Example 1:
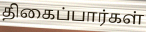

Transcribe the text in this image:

திகைப்பார்கள்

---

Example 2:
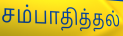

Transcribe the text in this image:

சம்பாதித்தல்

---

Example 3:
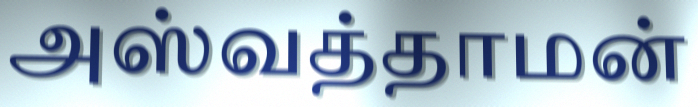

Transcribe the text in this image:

அஸ்வத்தாமன்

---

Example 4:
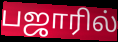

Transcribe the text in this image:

பஜாரில்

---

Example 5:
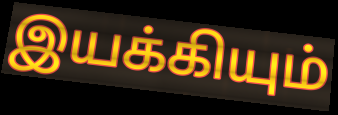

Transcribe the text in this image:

இயக்கியும்